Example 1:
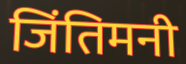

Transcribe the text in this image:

जिंतिमनी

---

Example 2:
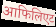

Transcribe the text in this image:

आफिलिएट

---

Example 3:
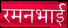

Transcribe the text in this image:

रमनभाई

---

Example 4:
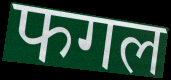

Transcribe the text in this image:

फगल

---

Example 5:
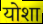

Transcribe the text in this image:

योशा